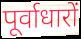
पूर्वाधारों